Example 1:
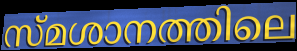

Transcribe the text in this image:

സ്മശാനത്തിലെ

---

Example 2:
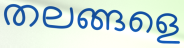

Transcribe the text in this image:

തലങ്ങളെ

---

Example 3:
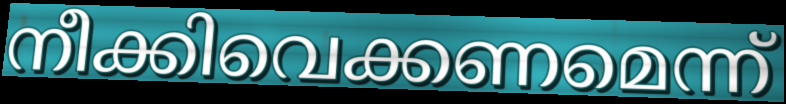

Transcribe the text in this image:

നീക്കിവെക്കണമെന്ന്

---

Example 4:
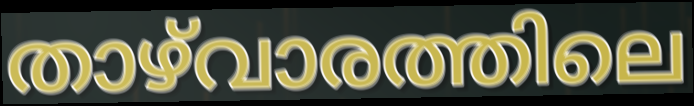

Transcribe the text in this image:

താഴ്‌വാരത്തിലെ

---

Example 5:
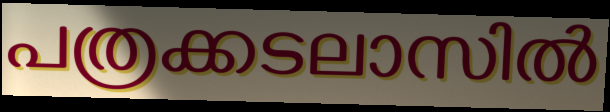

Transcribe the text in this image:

പത്രക്കടലാസിൽ